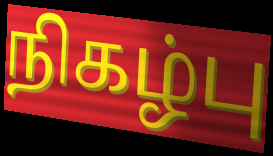
நிகழ்பு